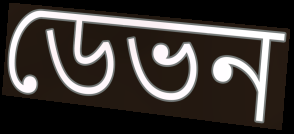
ডেভন